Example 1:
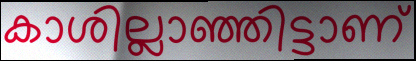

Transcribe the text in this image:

കാശില്ലാഞ്ഞിട്ടാണ്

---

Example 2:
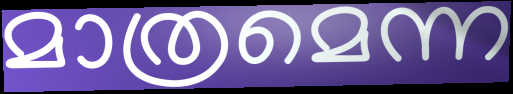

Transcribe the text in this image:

മാത്രമെന്ന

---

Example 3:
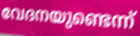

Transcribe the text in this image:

വേദനയുണ്ടെന്ന്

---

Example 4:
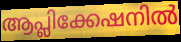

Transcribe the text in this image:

ആപ്ലിക്കേഷനിൽ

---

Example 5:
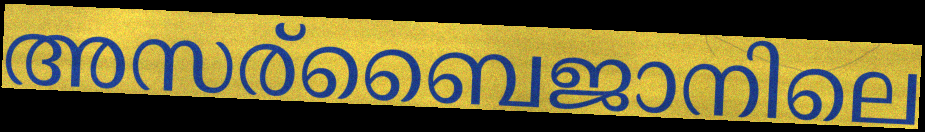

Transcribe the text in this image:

അസര്ബൈജാനിലെ